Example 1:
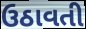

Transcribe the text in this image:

ઉઠાવતી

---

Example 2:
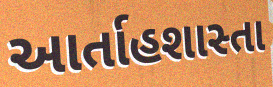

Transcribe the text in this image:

આર્તાહશાસ્તા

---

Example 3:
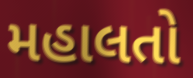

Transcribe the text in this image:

મહાલતો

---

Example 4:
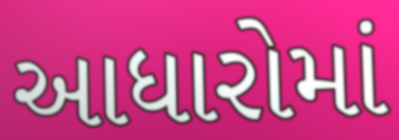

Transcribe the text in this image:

આધારોમાં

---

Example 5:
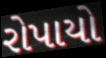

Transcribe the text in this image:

રોપાયો